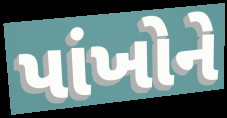
પાંખોને